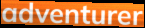
adventurer